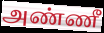
அண்ணீ